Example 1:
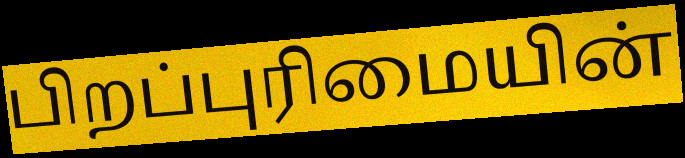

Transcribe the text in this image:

பிறப்புரிமையின்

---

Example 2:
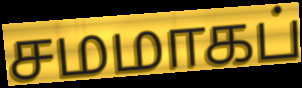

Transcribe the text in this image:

சமமாகப்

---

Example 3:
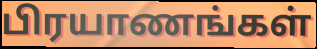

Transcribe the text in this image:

பிரயாணங்கள்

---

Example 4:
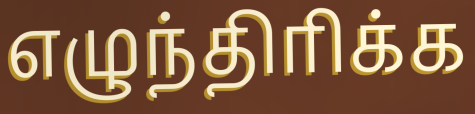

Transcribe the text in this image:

எழுந்திரிக்க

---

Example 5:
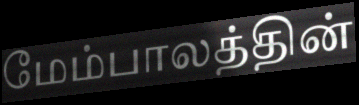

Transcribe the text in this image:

மேம்பாலத்தின்